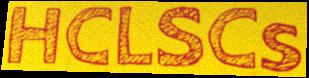
HCLSCs